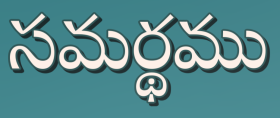
సమర్థము